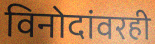
विनोदांवरही